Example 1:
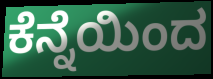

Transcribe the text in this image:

ಕೆನ್ನೆಯಿಂದ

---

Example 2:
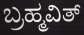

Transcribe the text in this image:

ಬ್ರಹ್ಮವಿತ್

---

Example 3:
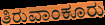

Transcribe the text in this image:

ತಿರುವಾಂಕೂರು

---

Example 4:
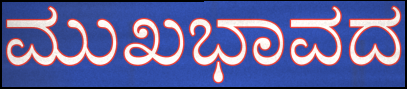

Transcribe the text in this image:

ಮುಖಭಾವದ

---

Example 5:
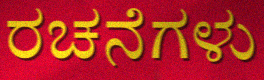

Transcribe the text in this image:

ರಚನೆಗಳು